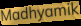
Madhyamik